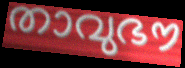
താവുഭൗ